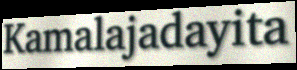
Kamalajadayita